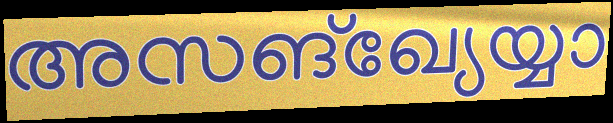
അസങ്ഖ്യേയ്യാ